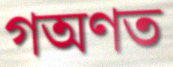
গঅণত